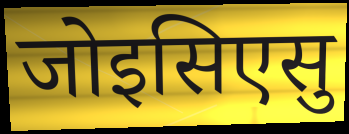
जोइसिएसु